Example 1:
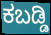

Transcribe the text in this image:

ಕಬಡ್ಡಿ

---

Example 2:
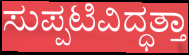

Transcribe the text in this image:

ಸುಪ್ಪಟಿವಿದ್ಧತ್ತಾ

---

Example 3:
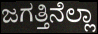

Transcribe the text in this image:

ಜಗತ್ತಿನೆಲ್ಲಾ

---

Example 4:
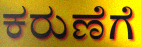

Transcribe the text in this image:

ಕರುಣೆಗೆ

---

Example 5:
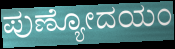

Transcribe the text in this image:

ಪುಣ್ಯೋದಯಂ